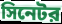
সিনেটর